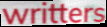
writters